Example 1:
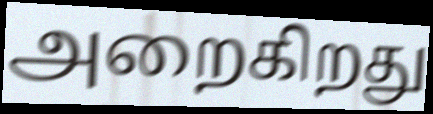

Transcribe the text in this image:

அறைகிறது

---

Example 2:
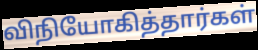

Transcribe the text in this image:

விநியோகித்தார்கள்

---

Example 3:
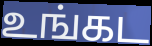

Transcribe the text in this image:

உங்கட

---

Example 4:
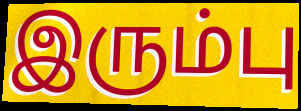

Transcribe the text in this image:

இரும்பு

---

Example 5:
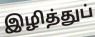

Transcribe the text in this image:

இழித்துப்